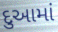
દુઆમાં